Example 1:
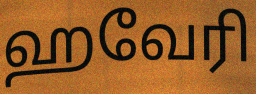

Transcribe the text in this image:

ஹவேரி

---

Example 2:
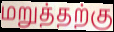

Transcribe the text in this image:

மறுத்தற்கு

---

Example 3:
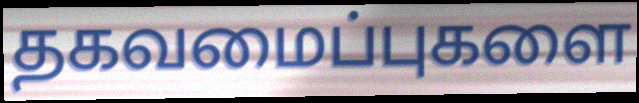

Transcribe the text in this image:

தகவமைப்புகளை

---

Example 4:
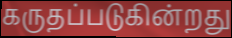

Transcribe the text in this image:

கருதப்படுகின்றது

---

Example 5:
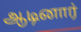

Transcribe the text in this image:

ஆடினார்